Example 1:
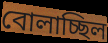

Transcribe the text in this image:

বোলাচ্ছিল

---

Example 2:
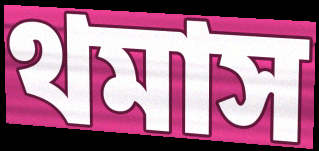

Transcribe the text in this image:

থমাস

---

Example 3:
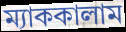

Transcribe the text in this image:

ম্যাককালাম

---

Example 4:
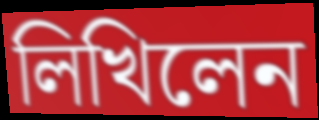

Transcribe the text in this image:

লিখিলেন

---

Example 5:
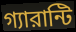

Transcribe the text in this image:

গ্যারান্টি